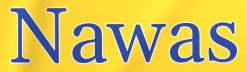
Nawas